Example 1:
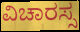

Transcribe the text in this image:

ವಿಚಾರಸ್ಸ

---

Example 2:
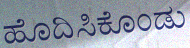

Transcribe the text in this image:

ಹೊದಿಸಿಕೊಂಡು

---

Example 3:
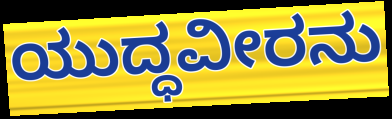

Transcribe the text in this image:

ಯುದ್ಧವೀರನು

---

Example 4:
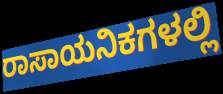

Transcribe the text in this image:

ರಾಸಾಯನಿಕಗಳಲ್ಲಿ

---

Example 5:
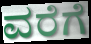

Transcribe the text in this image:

ವರೆಗೆ